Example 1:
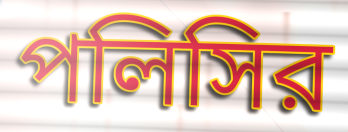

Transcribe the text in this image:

পলিসির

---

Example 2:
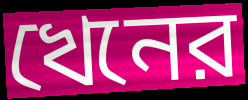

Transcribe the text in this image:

খেনের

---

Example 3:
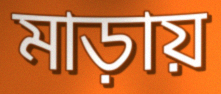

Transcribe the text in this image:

মাড়ায়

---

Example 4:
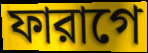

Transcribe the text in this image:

ফারাগে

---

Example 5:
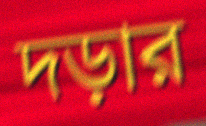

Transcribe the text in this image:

দড়ার